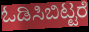
ಓಡಿಸಿಬಿಟ್ಟರೆ